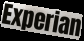
Experian